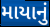
માયાનું